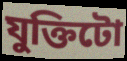
যুক্তিটো